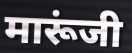
मारूंजी